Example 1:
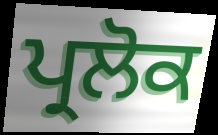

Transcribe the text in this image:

ਪ੍ਰਲੋਕ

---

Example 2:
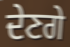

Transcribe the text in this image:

ਦੇਣਗੇ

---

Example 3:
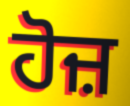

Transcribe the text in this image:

ਹੋਜ਼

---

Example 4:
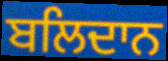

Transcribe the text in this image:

ਬਲਿਦਾਨ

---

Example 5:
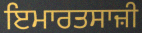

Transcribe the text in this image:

ਇਮਾਰਤਸਾਜ਼ੀ